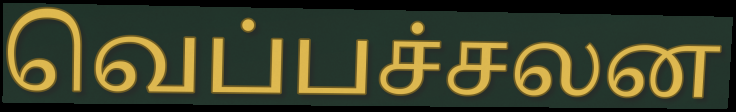
வெப்பச்சலன